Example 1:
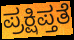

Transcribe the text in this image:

ಪ್ರಕ್ಷಿಪ್ತತೆ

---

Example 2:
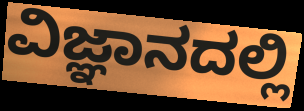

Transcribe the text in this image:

ವಿಜ್ಞಾನದಲ್ಲಿ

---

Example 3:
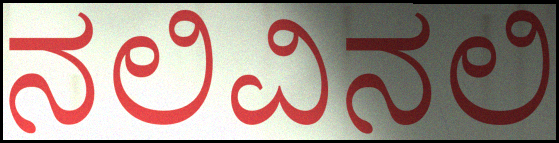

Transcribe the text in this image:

ನಲಿವಿನಲಿ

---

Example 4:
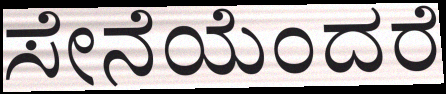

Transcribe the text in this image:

ಸೇನೆಯೆಂದರೆ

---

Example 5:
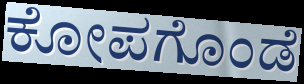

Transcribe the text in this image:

ಕೋಪಗೊಂಡೆ